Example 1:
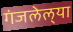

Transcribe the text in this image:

गंजलेल्या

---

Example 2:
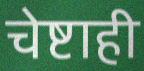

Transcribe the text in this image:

चेष्टाही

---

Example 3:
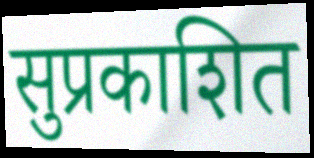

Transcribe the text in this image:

सुप्रकाशित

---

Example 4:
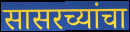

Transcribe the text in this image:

सासरच्यांचा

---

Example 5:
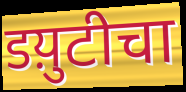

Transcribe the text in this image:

डय़ुटीचा